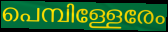
പെമ്പിള്ളേരേം